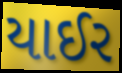
યાઈર